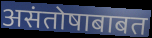
असंतोषाबाबत